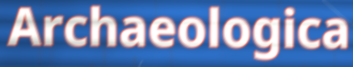
Archaeologica